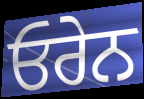
ਓਰੇਨ